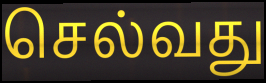
செல்வது